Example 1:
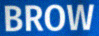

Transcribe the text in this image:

BROW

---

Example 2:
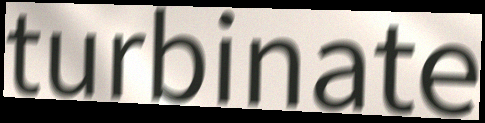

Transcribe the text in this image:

turbinate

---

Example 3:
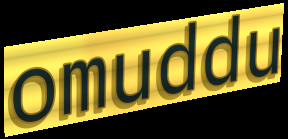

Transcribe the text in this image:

omuddu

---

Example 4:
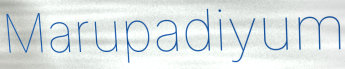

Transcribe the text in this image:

Marupadiyum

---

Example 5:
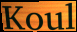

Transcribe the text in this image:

Koul